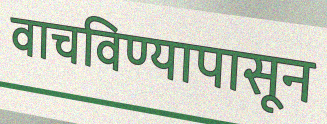
वाचविण्यापासून